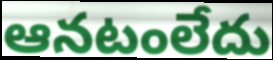
ఆనటంలేదు